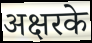
अक्षरके